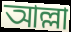
আল্লা